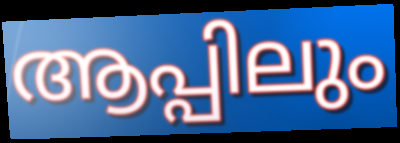
ആപ്പിലും